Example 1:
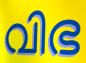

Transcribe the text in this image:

വിഭ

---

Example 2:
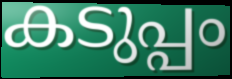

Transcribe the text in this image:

കടുപ്പം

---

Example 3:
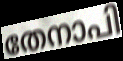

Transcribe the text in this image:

തേനാപി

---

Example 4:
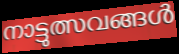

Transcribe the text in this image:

നാട്ടുത്സവങ്ങൾ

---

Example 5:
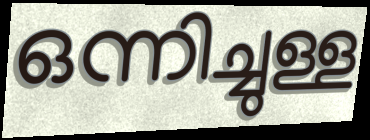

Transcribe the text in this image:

ഒന്നിച്ചുള്ള